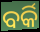
ବର୍କି